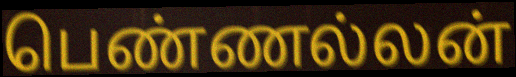
பெண்ணல்லன்